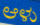
ಆಳು